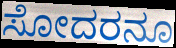
ಸೋದರನೂ